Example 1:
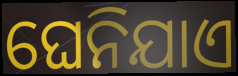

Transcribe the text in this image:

ଘେନିଯାଏ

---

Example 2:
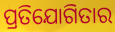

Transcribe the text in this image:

ପ୍ରତିଯୋଗିତାର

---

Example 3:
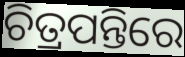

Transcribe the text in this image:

ଚିତ୍ରପନ୍ତିରେ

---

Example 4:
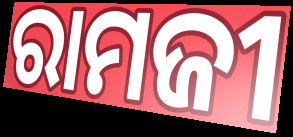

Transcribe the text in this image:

ରାମଜୀ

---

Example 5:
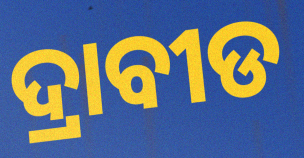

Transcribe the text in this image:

ଦ୍ରାବୀଡ